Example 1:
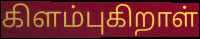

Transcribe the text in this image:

கிளம்புகிறாள்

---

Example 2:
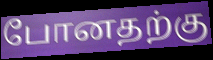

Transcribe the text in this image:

போனதற்கு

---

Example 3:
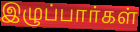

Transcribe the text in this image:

இழுப்பார்கள்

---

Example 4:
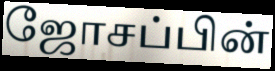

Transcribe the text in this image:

ஜோசப்பின்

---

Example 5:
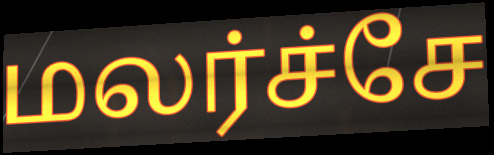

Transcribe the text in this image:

மலர்ச்சே